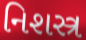
નિશસ્ત્ર